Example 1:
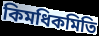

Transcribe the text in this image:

কিমধিকমিতি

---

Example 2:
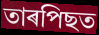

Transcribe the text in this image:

তাৰপিছত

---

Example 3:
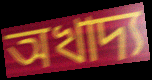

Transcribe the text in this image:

অখাদ্য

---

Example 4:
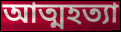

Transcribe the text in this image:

আত্মহত্যা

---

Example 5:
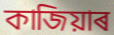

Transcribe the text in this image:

কাজিয়াৰ